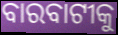
ବାରବାଟୀକୁ